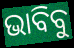
ଭାବିବୁ